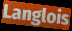
Langlois